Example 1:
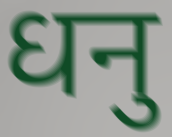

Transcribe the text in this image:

धनु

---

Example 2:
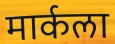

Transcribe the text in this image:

मार्कला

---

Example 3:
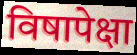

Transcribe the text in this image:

विषापेक्षा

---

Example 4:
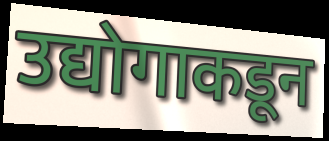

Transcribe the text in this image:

उद्योगाकडून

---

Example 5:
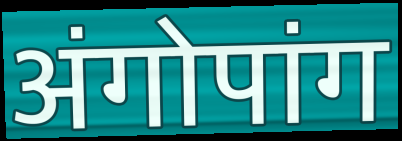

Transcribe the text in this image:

अंगोपांग